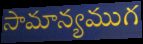
సామాన్యముగ